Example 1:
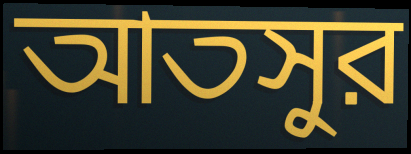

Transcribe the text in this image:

আতসুর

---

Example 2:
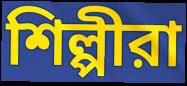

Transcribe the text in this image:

শিল্পীরা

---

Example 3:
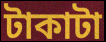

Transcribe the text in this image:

টাকাটা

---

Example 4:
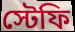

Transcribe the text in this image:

স্টেফি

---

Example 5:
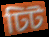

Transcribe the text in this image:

ঢিট